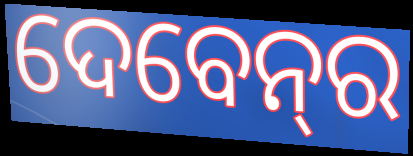
ଦେବେନ୍‌ର